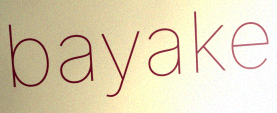
bayake